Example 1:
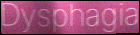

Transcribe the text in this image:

Dysphagia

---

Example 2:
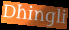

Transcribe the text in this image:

Dhingli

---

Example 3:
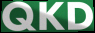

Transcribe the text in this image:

QKD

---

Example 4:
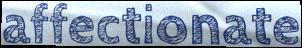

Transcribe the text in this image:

affectionate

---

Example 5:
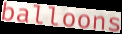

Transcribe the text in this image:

balloons